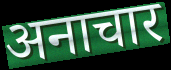
अनाचार